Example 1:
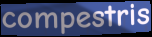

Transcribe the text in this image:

compestris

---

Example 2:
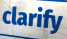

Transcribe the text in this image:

clarify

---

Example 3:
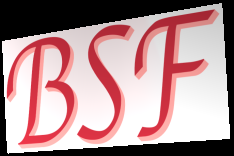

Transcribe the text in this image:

BSF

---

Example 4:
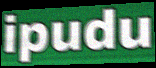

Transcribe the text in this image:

ipudu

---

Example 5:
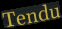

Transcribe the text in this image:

Tendu